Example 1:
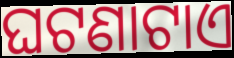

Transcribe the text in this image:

ଘଟଣାଟାଏ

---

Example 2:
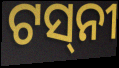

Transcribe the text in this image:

ଟସ୍‌ନୀ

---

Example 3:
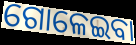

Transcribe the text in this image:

ଗୋଳେଇବା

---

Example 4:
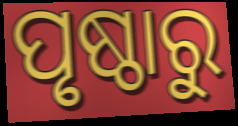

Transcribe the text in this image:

ପୃଷ୍ଠାରୁ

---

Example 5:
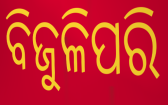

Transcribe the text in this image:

ବିଜୁଳିପରି